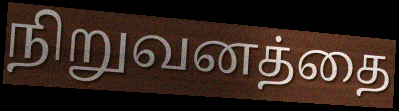
நிறுவனத்தை